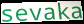
sevaka